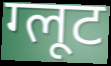
ग्लूट